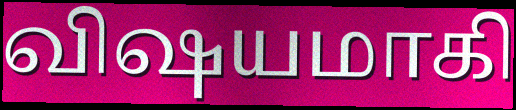
விஷயமாகி